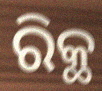
ରିକ୍ଥ